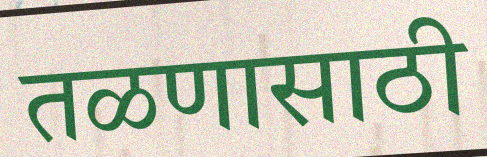
तळणासाठी